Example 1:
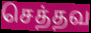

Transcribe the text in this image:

செத்தவ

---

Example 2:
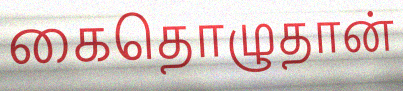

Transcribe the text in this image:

கைதொழுதான்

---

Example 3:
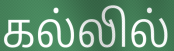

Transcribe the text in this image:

கல்லில்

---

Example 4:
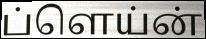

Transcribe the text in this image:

ப்ளெய்ன்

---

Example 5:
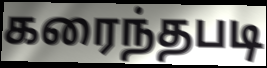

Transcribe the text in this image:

கரைந்தபடி